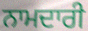
ਨਾਮਦਾਰੀ